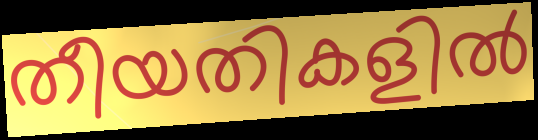
തീയതികളിൽ